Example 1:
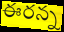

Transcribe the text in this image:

ఈరన్న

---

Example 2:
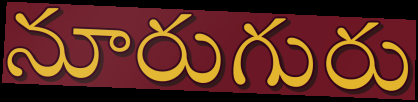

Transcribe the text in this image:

నూరుగురు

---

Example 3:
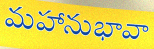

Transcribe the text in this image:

మహానుభావా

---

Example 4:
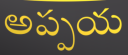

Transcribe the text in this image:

అప్పయ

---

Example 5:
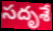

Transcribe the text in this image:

సదృశే